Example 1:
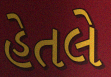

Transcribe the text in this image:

હેતલે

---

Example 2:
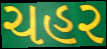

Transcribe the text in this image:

ચહર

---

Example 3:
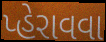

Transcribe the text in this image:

પ્હેરાવવા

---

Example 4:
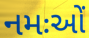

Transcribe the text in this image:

નમઃઓં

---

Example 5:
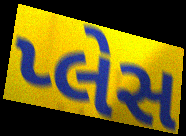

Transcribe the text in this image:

પ્લેસ